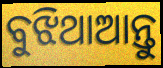
ବୁଝିଥାଆନ୍ତୁ